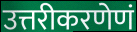
उत्तरीकरणेणं